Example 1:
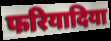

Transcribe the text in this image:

फरियादिया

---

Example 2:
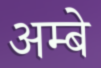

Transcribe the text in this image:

अम्बे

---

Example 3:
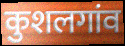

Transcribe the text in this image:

कुशलगांव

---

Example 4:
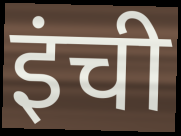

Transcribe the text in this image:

इंची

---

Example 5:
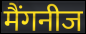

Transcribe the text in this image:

मैंगनीज